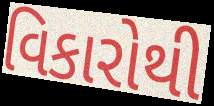
વિકારોથી